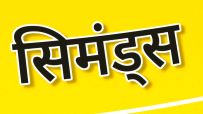
सिमंड्स